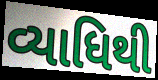
વ્યાધિથી